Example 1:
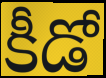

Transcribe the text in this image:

కీడో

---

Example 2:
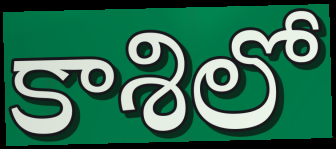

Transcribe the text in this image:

కాశిలో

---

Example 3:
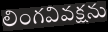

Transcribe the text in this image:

లింగవివక్షను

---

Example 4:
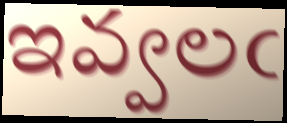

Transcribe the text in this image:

ఇవ్వలఁ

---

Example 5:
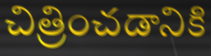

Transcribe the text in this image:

చిత్రించడానికి